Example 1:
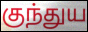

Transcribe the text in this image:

குந்துய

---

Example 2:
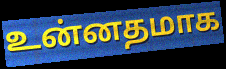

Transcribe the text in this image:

உன்னதமாக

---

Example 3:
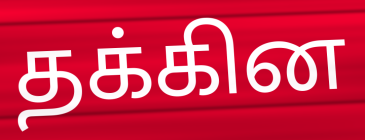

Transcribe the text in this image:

தக்கின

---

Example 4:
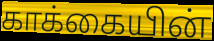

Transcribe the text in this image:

காக்கையின்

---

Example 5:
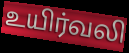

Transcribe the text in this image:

உயிர்வலி